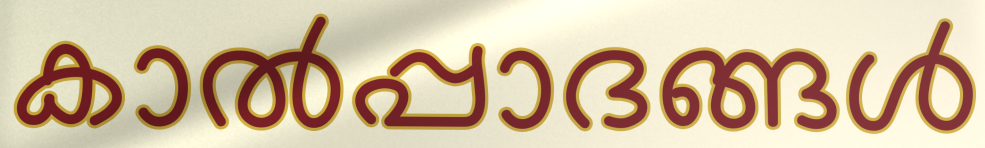
കാൽപ്പാദങ്ങൾ